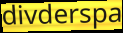
divderspa